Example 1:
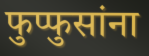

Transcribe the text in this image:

फुप्फुसांना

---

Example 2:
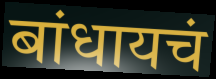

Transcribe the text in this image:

बांधायचं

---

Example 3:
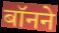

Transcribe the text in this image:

बॉनने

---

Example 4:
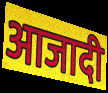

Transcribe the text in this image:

आजादी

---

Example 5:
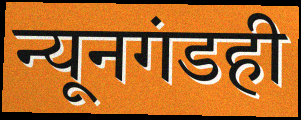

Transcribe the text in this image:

न्यूनगंडही